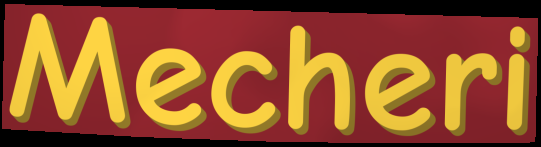
Mecheri